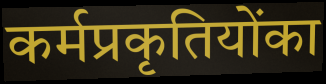
कर्मप्रकृतियोंका